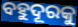
ବହୁଦୂରକୁ